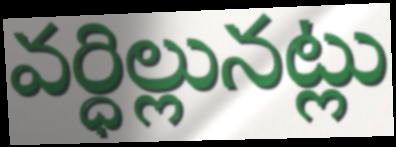
వర్ధిల్లునట్లు